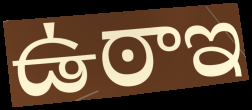
ఉఠాఇ